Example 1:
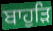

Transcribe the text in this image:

ਬਾਹੁੜਿ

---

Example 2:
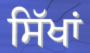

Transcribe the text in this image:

ਸਿੱਖਾਂ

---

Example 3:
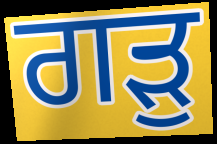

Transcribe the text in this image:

ਗੜੁ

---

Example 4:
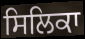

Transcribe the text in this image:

ਸਿਲਿਕਾ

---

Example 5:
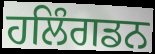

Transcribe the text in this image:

ਹਲਿੰਗਡਨ